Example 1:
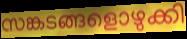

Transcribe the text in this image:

സങ്കടങ്ങളൊഴുക്കി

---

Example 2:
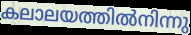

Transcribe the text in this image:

കലാലയത്തിൽനിന്നു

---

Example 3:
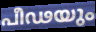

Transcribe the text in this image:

പീഢയും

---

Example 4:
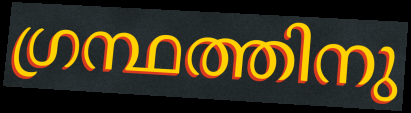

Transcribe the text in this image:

ഗ്രന്ഥത്തിനു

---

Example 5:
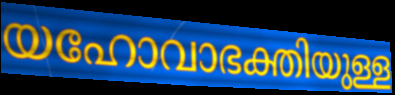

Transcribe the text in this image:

യഹോവാഭക്തിയുള്ള